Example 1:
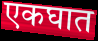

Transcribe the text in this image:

एकघात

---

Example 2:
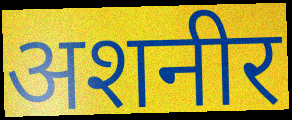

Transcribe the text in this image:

अशनीर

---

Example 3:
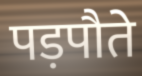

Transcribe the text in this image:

पड़पौते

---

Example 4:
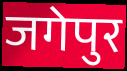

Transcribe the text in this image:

जगेपुर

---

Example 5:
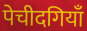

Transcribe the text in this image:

पेचीदगियाँ